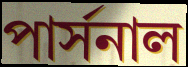
পার্সনাল